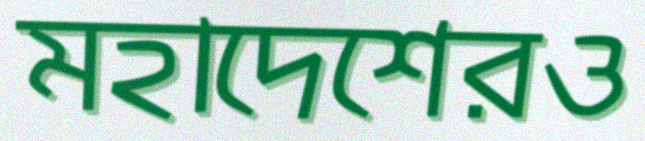
মহাদেশেরও